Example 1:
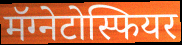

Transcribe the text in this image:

मॅग्नेटोस्फियर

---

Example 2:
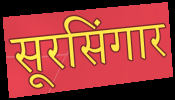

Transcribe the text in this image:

सूरसिंगार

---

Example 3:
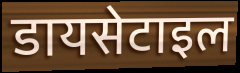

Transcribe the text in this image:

डायसेटाइल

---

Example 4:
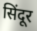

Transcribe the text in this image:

सिंदूर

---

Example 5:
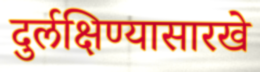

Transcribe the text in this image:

दुर्लक्षिण्यासारखे